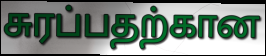
சுரப்பதற்கான